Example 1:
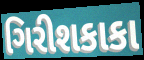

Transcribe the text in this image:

ગિરીશકાકા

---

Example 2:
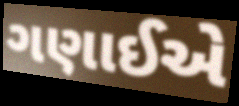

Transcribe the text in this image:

ગણાઈએ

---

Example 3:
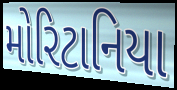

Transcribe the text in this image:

મોરિટાનિયા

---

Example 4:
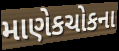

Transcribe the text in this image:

માણેકચોકના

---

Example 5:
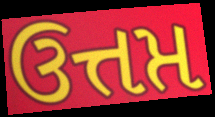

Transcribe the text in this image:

ઉત્તપ્ત